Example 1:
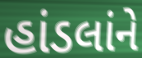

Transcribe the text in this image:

હાંડલાંને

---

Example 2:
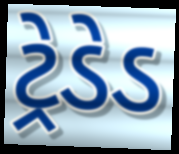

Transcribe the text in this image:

ટ્રેડેડ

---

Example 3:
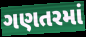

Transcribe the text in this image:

ગણતરમાં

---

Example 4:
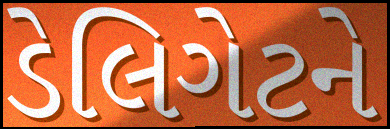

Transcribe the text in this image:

ડેલિગેટને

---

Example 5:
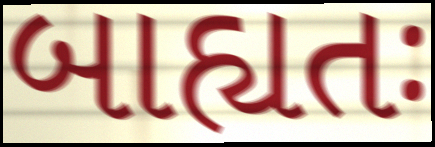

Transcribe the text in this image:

બાહ્યતઃ